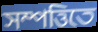
সম্পত্তিতে